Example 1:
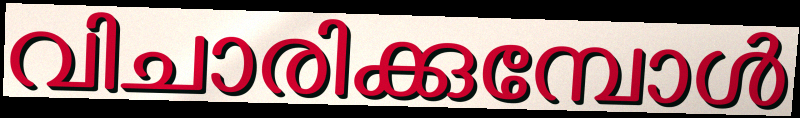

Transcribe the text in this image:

വിചാരിക്കുമ്പോൾ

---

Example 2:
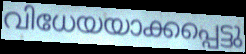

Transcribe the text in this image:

വിധേയയാക്കപ്പെട്ടു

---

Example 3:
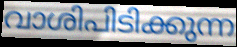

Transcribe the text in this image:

വാശിപിടിക്കുന്ന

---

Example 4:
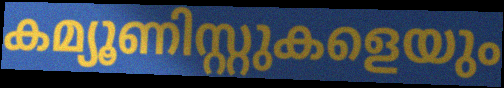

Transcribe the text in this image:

കമ്യൂണിസ്റ്റുകളെയും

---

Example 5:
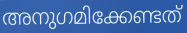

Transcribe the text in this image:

അനുഗമിക്കേണ്ടത്